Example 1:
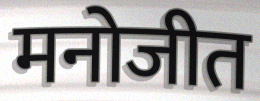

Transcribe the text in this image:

मनोजीत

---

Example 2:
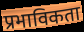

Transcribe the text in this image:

प्रभाविकता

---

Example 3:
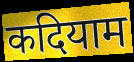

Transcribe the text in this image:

कदियाम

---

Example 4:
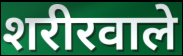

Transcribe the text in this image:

शरीरवाले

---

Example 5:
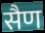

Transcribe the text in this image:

सैण